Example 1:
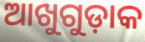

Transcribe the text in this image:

ଆଖୁଗୁଡ଼ାକ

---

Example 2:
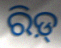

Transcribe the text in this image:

ରିଡ଼୍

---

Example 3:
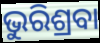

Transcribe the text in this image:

ଭୁରିଶ୍ରବା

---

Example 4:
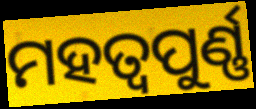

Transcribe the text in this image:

ମହତ୍ୱପୁର୍ଣ୍ଣ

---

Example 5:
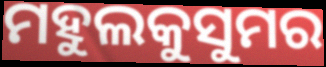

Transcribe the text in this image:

ମହୁଲକୁସୁମର